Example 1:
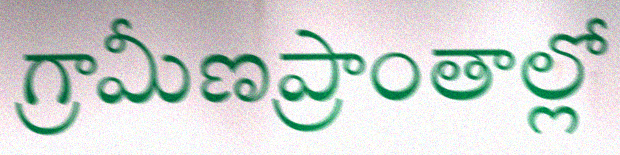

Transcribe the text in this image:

గ్రామీణప్రాంతాల్లో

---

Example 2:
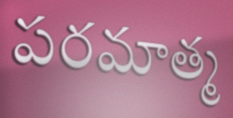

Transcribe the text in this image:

పరమాత్మ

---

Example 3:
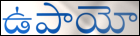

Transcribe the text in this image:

ఉపాయో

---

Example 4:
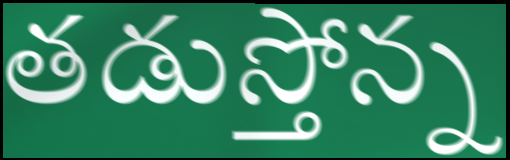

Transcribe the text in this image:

తడుస్తోన్న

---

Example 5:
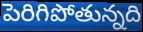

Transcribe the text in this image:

పెరిగిపోతున్నది